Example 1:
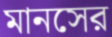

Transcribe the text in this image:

মানসের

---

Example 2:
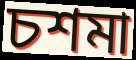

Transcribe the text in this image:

চশমা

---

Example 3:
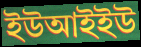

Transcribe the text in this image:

ইউআইইউ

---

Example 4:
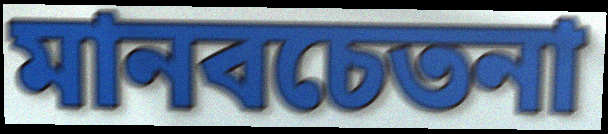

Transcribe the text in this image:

মানবচেতনা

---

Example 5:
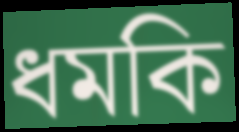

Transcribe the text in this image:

ধমকি